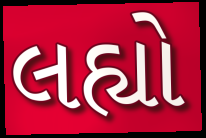
લહ્યો